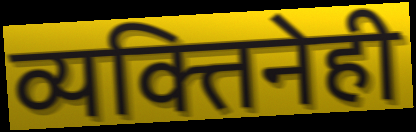
व्यक्तिनेही